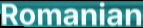
Romanian